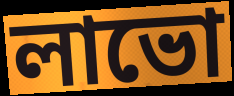
লাভো